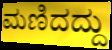
ಮಣಿದದ್ದು